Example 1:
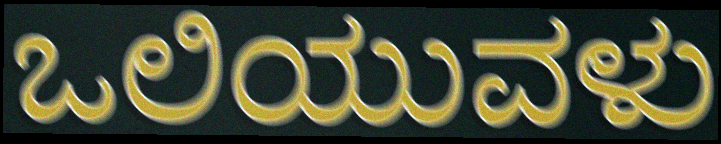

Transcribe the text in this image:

ಒಲಿಯುವಳು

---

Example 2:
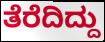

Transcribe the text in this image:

ತೆರೆದಿದ್ದು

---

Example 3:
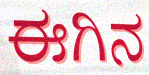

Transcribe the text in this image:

ಈಗಿನ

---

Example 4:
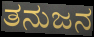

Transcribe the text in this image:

ತನುಜನ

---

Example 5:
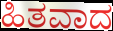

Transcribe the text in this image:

ಹಿತವಾದ